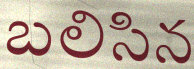
బలిసిన